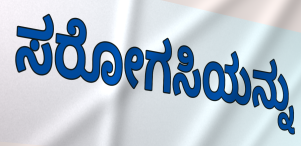
ಸರೋಗಸಿಯನ್ನು